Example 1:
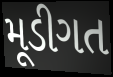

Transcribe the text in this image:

મૂડીગત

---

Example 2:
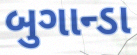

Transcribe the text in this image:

બુગાન્ડા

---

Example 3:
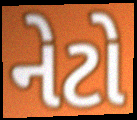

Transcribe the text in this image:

નેટો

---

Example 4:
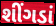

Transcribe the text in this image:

શીંગડાં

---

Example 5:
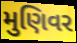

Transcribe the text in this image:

મુણિવર